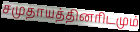
சமுதாயத்தினரிடமும்